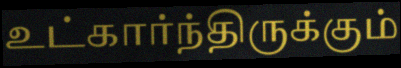
உட்கார்ந்திருக்கும்